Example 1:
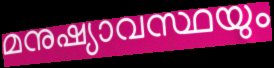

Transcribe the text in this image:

മനുഷ്യാവസ്ഥയും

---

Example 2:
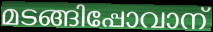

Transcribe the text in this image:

മടങ്ങിപ്പോവാന്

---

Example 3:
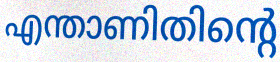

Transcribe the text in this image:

എന്താണിതിന്റെ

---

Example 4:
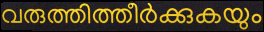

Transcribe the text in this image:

വരുത്തിത്തീർക്കുകയും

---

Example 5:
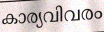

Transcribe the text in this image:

കാര്യവിവരം